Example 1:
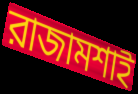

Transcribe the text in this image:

রাজামশাই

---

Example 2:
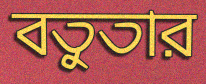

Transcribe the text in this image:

বতুতার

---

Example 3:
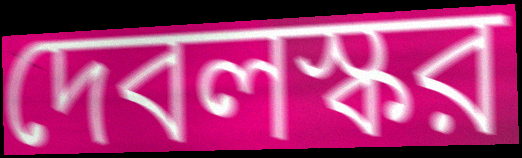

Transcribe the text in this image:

দেবলস্কর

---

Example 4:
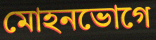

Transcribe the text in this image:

মোহনভোগে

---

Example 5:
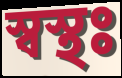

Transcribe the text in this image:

স্বস্থঃ